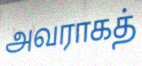
அவராகத்